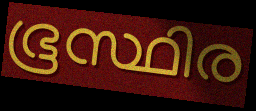
ഭൂസ്ഥിര